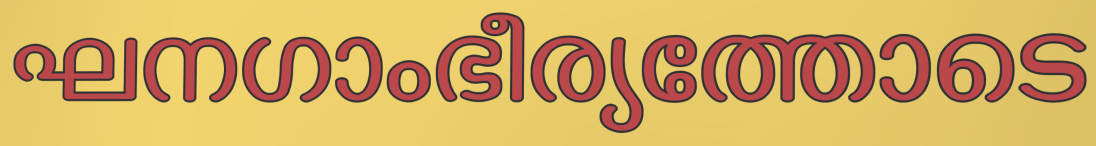
ഘനഗാംഭീര്യത്തോടെ